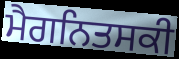
ਮੈਗਨਿਤਸਕੀ